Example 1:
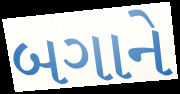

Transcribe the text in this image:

બગાને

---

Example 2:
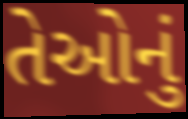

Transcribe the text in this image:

તેઓનું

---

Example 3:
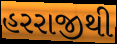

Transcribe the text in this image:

હરરાજીથી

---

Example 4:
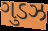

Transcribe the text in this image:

ગુડઝ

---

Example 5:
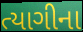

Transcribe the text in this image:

ત્યાગીના